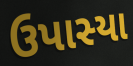
ઉપાસ્યા